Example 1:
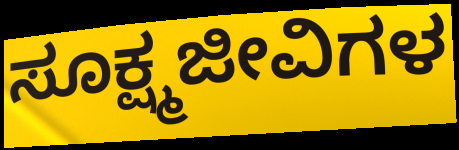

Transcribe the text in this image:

ಸೂಕ್ಷ್ಮಜೀವಿಗಳ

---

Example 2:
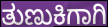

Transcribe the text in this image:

ತುಣುಕಿಗಾಗಿ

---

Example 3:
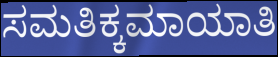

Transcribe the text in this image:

ಸಮತಿಕ್ಕಮಾಯಾತಿ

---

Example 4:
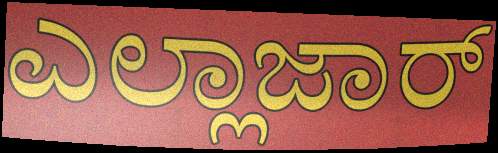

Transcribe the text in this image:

ಎಲ್ಲಾಜಾರ್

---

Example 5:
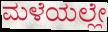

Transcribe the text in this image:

ಮಳೆಯಲ್ಲೇ